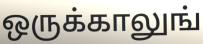
ஒருக்காலுங்